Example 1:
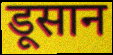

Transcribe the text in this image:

डूसान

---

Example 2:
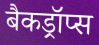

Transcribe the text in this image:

बैकड्रॉप्स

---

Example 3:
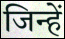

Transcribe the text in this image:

जिन्‍हें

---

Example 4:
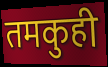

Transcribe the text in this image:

तमकुही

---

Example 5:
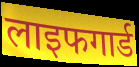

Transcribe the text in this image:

लाइफगार्ड